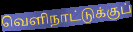
வெளிநாட்டுக்குப்